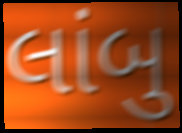
લાંબુ